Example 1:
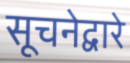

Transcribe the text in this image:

सूचनेद्वारे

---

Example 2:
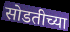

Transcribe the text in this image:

सोडतीच्या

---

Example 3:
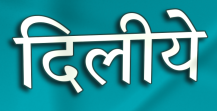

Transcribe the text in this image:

दिलीये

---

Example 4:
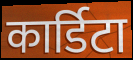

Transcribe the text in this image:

कार्डिटा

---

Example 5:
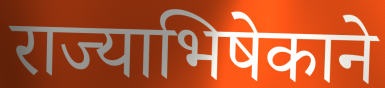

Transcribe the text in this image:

राज्याभिषेकाने